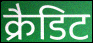
क्रैडिट